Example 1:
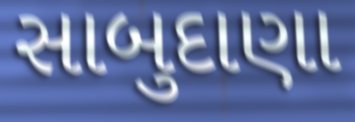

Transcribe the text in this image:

સાબુદાણા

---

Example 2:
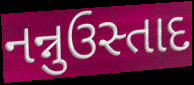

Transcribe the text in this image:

નન્નુઉસ્તાદ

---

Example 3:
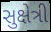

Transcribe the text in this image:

સુક્ષેત્રી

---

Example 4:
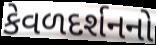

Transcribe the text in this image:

કેવળદર્શનનો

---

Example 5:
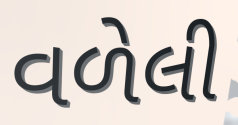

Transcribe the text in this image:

વળેલી